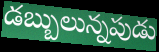
డబ్బులున్నపుడు